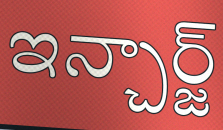
ఇన్చార్జ్